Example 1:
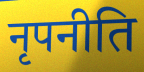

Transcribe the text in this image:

नृपनीति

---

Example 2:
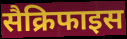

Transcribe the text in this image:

सैक्रिफाइस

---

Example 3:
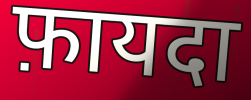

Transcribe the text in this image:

फ़ायदा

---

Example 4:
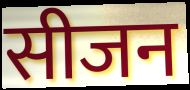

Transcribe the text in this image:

सीजन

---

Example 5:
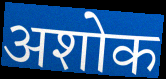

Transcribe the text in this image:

अशोक